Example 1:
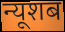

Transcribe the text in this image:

न्यूशब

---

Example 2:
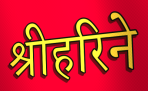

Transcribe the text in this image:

श्रीहरिने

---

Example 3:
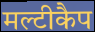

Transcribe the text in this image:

मल्‍टीकैप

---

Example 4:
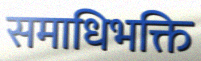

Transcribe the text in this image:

समाधिभक्ति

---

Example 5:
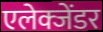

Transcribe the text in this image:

एलेक्‍जेंडर